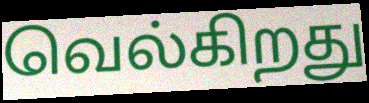
வெல்கிறது